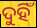
ଦୁହିଁ